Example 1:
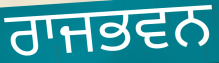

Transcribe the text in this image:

ਰਾਜਭਵਨ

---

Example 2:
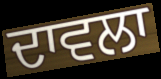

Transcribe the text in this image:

ਦਾਵਲਾ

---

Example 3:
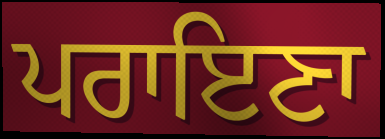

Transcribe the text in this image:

ਪਰਾਇਣਾ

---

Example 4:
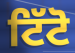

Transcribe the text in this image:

ਟਿੱਟੋ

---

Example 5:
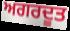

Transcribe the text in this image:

ਅਗਰਦੂਤ